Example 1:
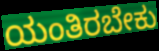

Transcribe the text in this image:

ಯಂತಿರಬೇಕು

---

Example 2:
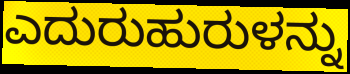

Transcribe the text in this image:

ಎದುರುಹುರುಳನ್ನು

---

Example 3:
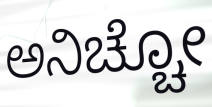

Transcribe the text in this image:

ಅನಿಚ್ಚೋ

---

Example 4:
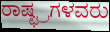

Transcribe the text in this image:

ರಾಷ್ಟ್ರಗಳವರು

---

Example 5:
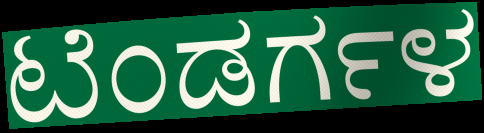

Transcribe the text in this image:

ಟೆಂಡರ್ಗಳ